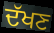
ਦੱਖਣ